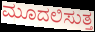
ಮೂದಲಿಸುತ್ತ